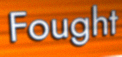
Fought